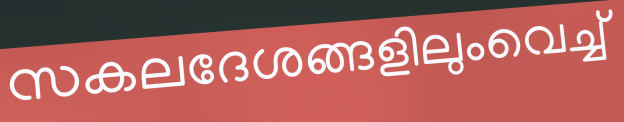
സകലദേശങ്ങളിലുംവെച്ച്